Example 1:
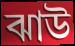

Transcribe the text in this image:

ঝাউ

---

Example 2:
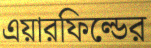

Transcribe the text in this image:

এয়ারফিল্ডের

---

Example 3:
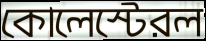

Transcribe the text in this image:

কোলেস্টেরল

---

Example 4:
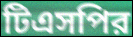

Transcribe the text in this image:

টিএসপির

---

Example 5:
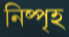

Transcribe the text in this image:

নিষ্পৃহ